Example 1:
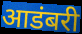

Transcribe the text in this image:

आडंबरी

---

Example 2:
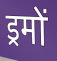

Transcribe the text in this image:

ड्रमों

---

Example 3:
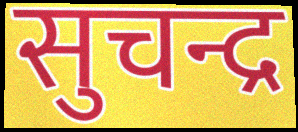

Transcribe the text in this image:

सुचन्द्र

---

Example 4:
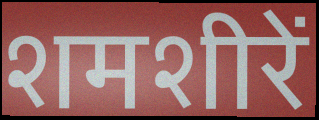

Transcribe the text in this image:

शमशीरें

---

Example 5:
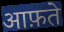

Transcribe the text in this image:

आफ़ते